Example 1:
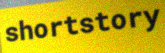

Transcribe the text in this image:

shortstory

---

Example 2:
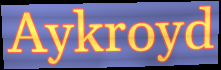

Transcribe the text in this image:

Aykroyd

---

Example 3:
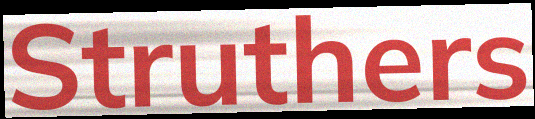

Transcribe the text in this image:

Struthers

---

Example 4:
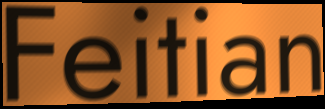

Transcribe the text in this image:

Feitian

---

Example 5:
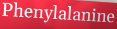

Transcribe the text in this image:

Phenylalanine